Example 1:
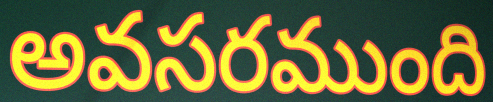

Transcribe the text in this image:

అవసరముంది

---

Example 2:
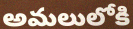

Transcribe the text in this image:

అమలులోకి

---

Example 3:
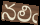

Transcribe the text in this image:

నలిఁ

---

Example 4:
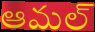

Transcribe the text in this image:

ఆమల్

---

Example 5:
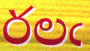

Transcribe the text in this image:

రలఁ